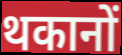
थकानों